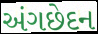
અંગછેદન